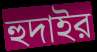
হুদাইর